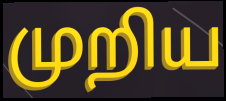
முறிய